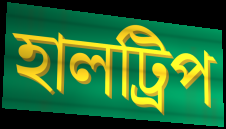
হালট্রিপ